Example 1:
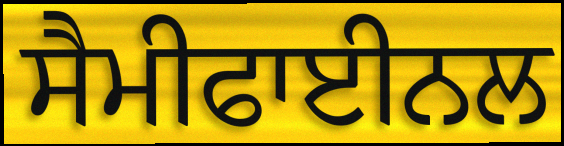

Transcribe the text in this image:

ਸੈਮੀਫਾਈਨਲ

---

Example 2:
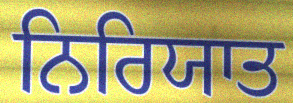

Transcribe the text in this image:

ਨਿਰਿਯਾਤ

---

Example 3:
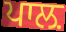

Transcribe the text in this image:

ਪਾਲ਼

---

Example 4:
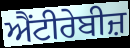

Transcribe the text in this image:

ਐਂਟੀਰੇਬੀਜ਼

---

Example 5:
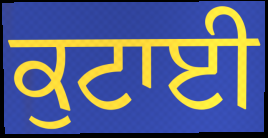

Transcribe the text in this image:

ਕੁਟਾਈ